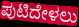
ಪುಟಿದೇಳಲು